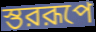
স্তররূপে